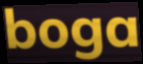
boga